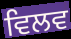
ਵਿਲਵ